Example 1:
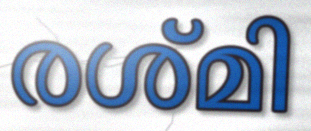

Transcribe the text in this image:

രശ്മി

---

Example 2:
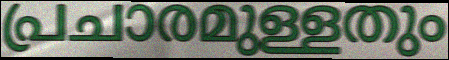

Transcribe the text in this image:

പ്രചാരമുള്ളതും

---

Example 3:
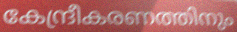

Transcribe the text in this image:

കേന്ദ്രീകരണത്തിനും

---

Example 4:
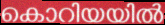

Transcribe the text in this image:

കൊറിയയിൽ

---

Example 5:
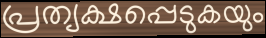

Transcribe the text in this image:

പ്രത്യക്ഷപ്പെടുകയും